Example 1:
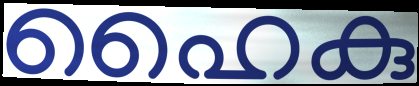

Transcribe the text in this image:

ഹൈകു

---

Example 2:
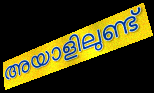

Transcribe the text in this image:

അയാളിലുണ്ട്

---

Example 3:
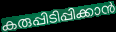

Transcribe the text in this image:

കരുപ്പിടിപ്പിക്കാൻ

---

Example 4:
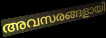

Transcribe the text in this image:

അവസരങ്ങളായി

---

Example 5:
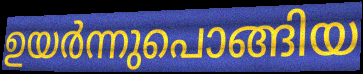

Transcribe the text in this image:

ഉയർന്നുപൊങ്ങിയ